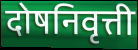
दोषनिवृत्ती